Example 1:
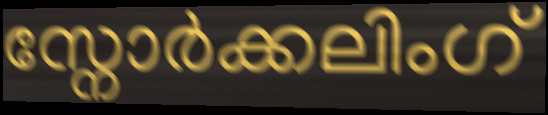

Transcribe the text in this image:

സ്നോർക്കലിംഗ്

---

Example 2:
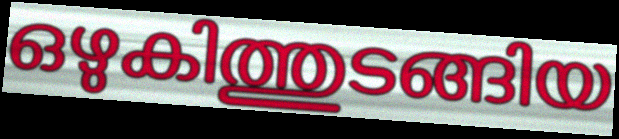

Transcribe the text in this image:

ഒഴുകിത്തുടങ്ങിയ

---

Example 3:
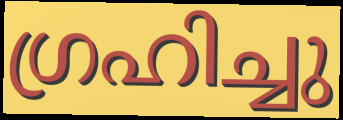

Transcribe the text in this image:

ഗ്രഹിച്ചു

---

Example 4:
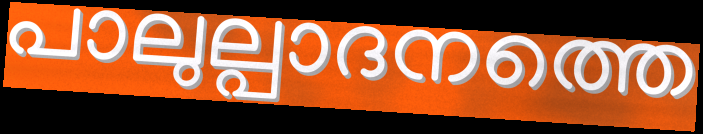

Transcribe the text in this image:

പാലുല്പാദനത്തെ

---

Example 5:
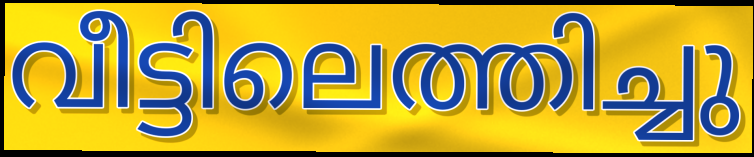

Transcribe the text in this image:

വീട്ടിലെത്തിച്ചു